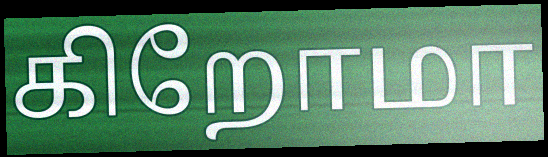
கிறோமா